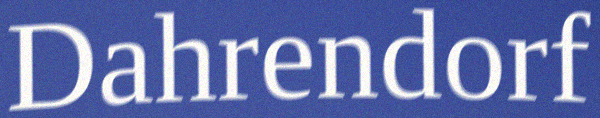
Dahrendorf